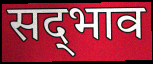
सद्‍भाव